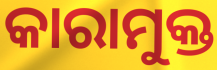
କାରାମୁକ୍ତ